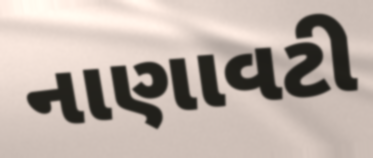
નાણાવટી